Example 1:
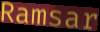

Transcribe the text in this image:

Ramsar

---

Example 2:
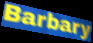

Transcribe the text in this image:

Barbary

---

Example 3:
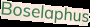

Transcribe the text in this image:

Boselaphus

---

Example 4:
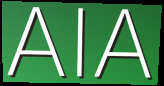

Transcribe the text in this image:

AIA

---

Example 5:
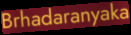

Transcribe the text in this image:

Brhadaranyaka